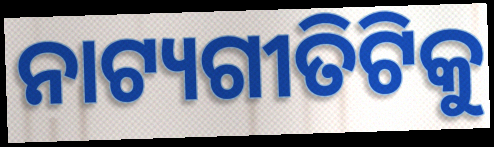
ନାଟ୍ୟଗୀତିଟିକୁ